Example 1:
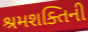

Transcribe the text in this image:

શ્રમશક્તિની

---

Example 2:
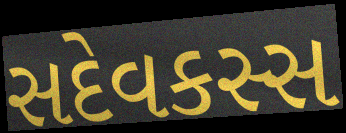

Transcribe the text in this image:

સદેવકસ્સ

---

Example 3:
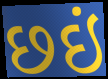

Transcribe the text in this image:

છઇં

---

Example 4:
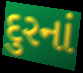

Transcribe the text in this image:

દુરનાં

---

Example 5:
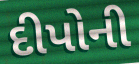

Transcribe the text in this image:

દીપોની